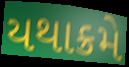
યથાક્રમે